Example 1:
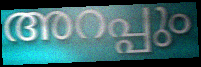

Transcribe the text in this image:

അറപ്പും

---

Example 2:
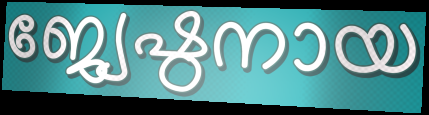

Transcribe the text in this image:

ജ്യേഷ്ഠനായ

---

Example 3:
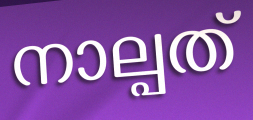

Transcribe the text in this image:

നാല്പത്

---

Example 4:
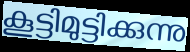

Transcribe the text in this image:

കൂട്ടിമുട്ടിക്കുന്നു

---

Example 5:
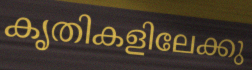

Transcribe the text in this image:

കൃതികളിലേക്കു